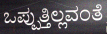
ಒಪ್ಪುತ್ತಿಲ್ಲವಂತೆ